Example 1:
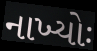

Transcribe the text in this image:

નાખ્યોઃ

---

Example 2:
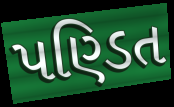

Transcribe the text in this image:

પણ્ડિત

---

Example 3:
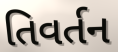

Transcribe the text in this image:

તિવર્તન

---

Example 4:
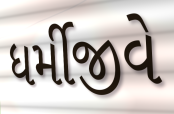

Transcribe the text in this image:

ધર્મીજીવે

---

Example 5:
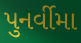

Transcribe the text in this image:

પુનર્વીમા